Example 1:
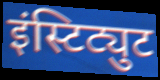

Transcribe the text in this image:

इंस्टिट्युट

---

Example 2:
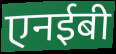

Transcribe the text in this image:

एनईबी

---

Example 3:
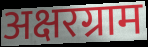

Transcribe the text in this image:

अक्षरग्राम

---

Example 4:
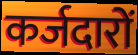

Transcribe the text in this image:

कर्जदारों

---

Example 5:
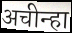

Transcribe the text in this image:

अचीन्हा